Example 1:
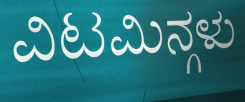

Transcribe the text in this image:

ವಿಟಮಿನ್ಗಳು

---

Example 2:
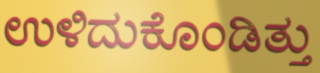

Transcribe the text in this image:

ಉಳಿದುಕೊಂಡಿತ್ತು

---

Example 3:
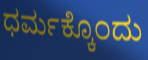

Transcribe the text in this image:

ಧರ್ಮಕ್ಕೊಂದು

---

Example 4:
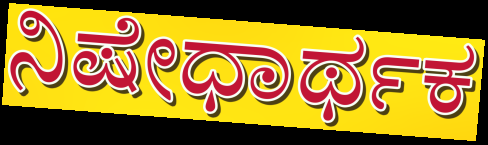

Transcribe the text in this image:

ನಿಷೇಧಾರ್ಥಕ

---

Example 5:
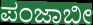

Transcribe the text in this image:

ಪಂಜಾಬೀ